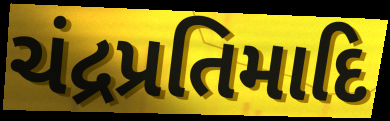
ચંદ્રપ્રતિમાદિ